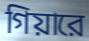
গিয়ারে